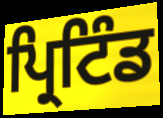
ਪ੍ਰਿਟਿੰਡ